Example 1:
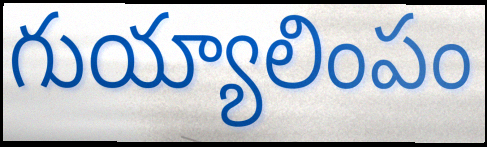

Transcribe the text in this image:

గుయ్యాలింపం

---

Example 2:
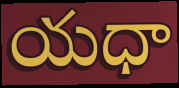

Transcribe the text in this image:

యధా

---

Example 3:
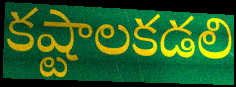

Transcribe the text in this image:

కష్టాలకడలి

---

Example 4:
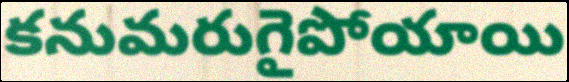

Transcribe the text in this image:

కనుమరుగైపోయాయి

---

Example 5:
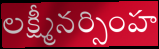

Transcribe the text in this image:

లక్ష్మీనర్సింహ